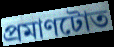
প্ৰমাণটোত